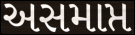
અસમાપ્ત